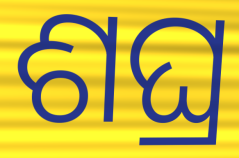
ଶଘ୍ର